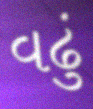
વઢું